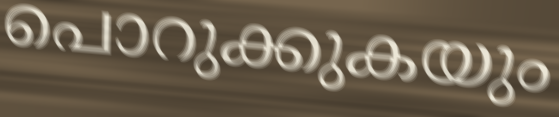
പൊറുക്കുകയും